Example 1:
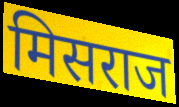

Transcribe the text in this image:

मिसराज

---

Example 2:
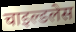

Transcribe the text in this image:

चाइल्डलेस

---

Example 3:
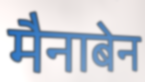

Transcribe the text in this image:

मैनाबेन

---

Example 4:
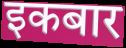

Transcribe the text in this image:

इकबार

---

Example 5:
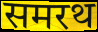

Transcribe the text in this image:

समरथ